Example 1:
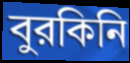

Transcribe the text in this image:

বুরকিনি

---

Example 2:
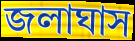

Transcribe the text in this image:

জলাঘাস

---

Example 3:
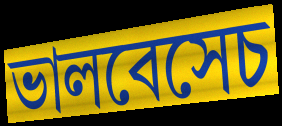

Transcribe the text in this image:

ভালবেসেচ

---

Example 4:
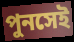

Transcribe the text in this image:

পুনসেই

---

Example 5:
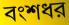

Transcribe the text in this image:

বংশধর